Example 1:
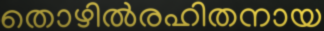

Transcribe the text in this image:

തൊഴിൽരഹിതനായ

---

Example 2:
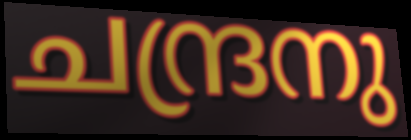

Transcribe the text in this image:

ചന്ദ്രനു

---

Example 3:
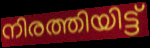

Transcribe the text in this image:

നിരത്തിയിട്ട്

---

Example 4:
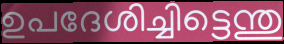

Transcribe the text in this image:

ഉപദേശിച്ചിട്ടെന്തു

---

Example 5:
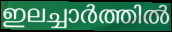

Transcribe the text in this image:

ഇലച്ചാർത്തിൽ